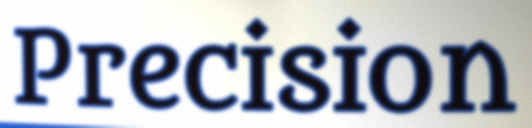
Precision